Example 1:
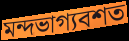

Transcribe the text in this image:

মন্দভাগ্যবশত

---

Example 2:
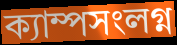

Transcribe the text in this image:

ক্যাম্পসংলগ্ন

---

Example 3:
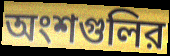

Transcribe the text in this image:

অংশগুলির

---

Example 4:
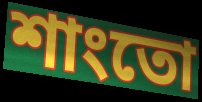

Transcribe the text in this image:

শাংতো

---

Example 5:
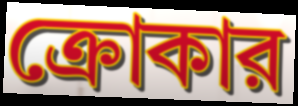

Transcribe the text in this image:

ক্রোকার